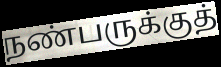
நண்பருக்குத்